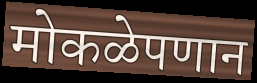
मोकळेपणान